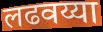
लढवय्या